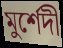
মুর্শেদী